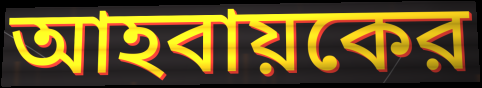
আহবায়কের